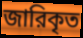
জারিকৃত